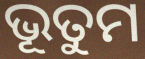
ଭୂତୁମ